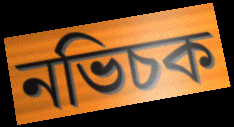
নভিচক